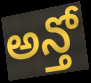
అన్తో